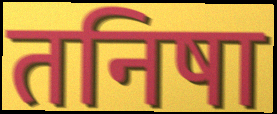
तनिषा